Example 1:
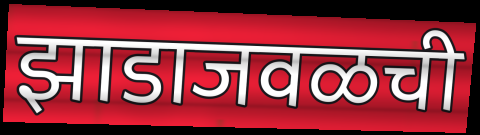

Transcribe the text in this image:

झाडाजवळची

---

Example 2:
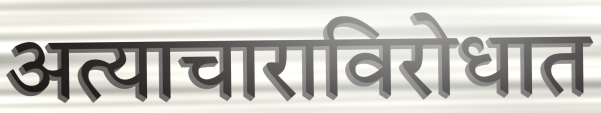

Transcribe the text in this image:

अत्याचाराविरोधात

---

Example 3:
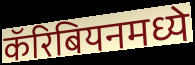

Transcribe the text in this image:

कॅरिबियनमध्ये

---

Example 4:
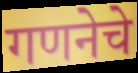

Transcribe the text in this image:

गणनेचे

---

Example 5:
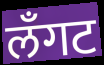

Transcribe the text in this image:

लँगट